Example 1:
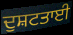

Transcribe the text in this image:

ਦੁਸ਼ਟਤਾਈ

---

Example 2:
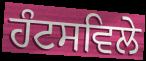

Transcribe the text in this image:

ਹੰਟਸਵਿਲੇ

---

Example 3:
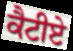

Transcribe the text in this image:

ਕੈਟੀਏ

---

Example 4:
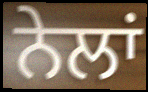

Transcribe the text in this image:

ਨੇਲਾਂ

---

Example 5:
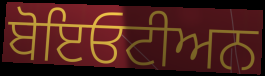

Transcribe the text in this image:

ਬੋਇਓਟੀਅਨ